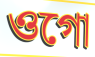
ওগো